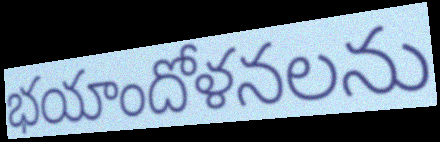
భయాందోళనలను